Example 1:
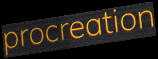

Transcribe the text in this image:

procreation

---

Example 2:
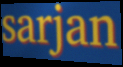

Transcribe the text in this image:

sarjan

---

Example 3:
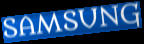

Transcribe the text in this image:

SAMSUNG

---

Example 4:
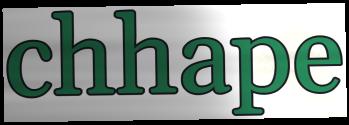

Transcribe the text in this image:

chhape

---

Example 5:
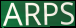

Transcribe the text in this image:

ARPS